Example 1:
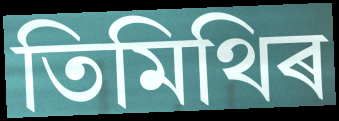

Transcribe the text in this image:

তিমিথিৰ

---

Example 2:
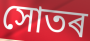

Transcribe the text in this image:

সোতৰ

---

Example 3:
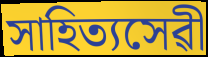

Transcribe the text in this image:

সাহিত্যসেৱী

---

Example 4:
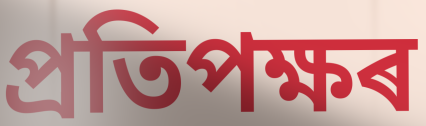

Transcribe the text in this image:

প্ৰতিপক্ষৰ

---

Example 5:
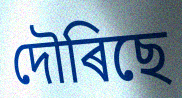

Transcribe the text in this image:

দৌৰিছে